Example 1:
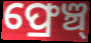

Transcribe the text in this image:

ଫ୍ରେଞ୍ଚ୍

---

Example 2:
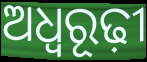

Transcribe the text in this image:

ଅଧ୍ଵରୂଢ଼ୀ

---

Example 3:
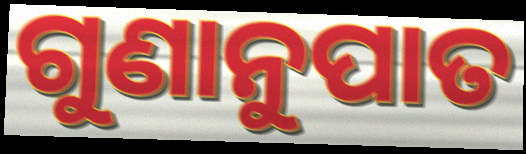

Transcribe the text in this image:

ଗୁଣାନୁପାତ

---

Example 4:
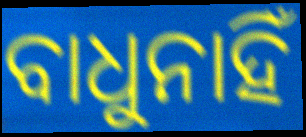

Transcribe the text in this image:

ବାଧୁନାହିଁ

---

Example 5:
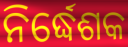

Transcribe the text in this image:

ନିର୍ଦ୍ଧେଶକ